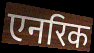
एनरिक